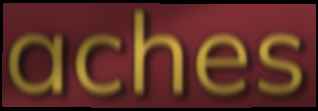
aches